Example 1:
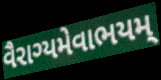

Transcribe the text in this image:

વૈરાગ્યમેવાભયમ્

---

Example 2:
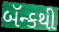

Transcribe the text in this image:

બૅન્કથી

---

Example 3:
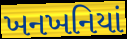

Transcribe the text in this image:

ખનખનિયાં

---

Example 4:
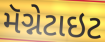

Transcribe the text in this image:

મૅગ્નેટાઇટ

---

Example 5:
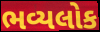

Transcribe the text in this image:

ભવ્યલોક